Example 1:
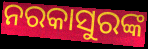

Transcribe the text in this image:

ନରକାସୁରଙ୍କ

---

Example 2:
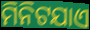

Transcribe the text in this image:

ମିନିଟଯାଏ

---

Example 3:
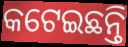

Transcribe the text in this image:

କଟେଇଛନ୍ତି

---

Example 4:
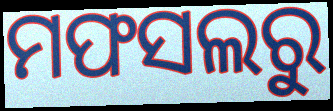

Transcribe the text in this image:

ମଫସଲରୁ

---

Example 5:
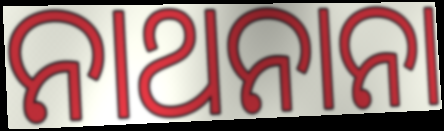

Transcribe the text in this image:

ନାଥନାନା